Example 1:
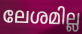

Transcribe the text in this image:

ലേശമില്ല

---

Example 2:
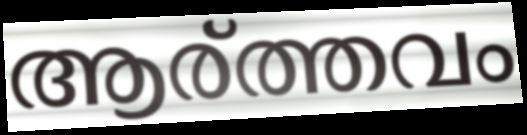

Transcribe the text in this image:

ആര്ത്തവം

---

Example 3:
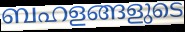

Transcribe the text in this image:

ബഹളങ്ങളുടെ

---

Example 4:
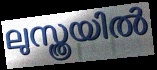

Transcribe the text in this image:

ലുസ്ത്രയിൽ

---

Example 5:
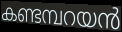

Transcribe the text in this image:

കണ്ടമ്പറയൻ